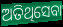
ଅତିଥିସେବା